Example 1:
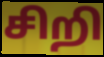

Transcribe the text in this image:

சிறி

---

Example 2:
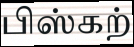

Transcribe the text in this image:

பிஸ்கற்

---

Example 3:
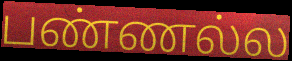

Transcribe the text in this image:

பண்ணல்ல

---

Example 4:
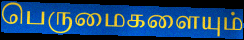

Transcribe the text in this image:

பெருமைகளையும்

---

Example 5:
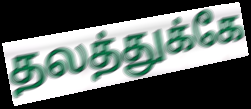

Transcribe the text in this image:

தலத்துக்கே